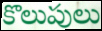
కొలుపులు